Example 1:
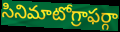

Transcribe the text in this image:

సినిమాటోగ్రాఫర్గా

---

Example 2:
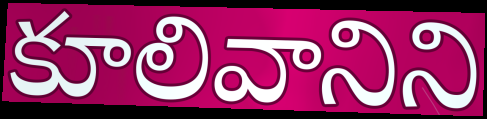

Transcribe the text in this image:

కూలివానిని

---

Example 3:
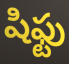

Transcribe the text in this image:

షిఫ్టు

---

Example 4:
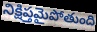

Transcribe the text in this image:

నిక్షిప్తమైపోతుంది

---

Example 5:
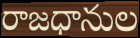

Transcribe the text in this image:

రాజధానుల